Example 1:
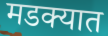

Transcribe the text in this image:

मडक्यात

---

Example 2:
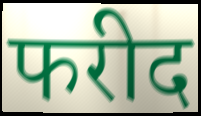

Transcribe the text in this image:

फरीद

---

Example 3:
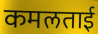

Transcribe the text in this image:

कमलताई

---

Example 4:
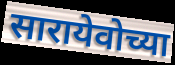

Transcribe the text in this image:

सारायेवोच्या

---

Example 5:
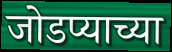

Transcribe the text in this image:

जोडप्याच्या